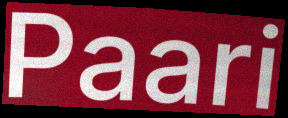
Paari